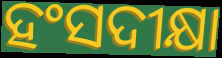
ହଂସଦୀକ୍ଷା